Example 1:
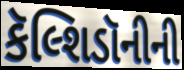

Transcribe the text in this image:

કૅલ્શિડૉનીની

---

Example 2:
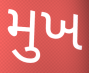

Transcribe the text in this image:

મુખ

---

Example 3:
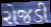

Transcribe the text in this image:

રોજડી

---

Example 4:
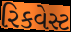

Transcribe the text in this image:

રિકવેસ્ટ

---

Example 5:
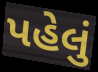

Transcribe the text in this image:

પહેલું